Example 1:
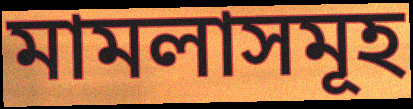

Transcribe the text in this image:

মামলাসমূহ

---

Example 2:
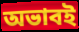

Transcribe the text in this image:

অভাবই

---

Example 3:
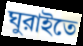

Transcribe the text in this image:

ঘুরাইতে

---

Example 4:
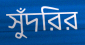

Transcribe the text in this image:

সুঁদরির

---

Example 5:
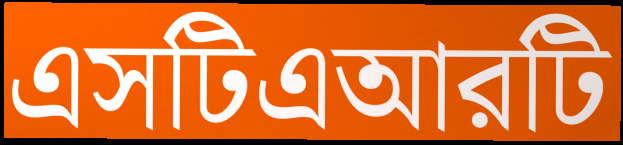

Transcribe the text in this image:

এসটিএআরটি